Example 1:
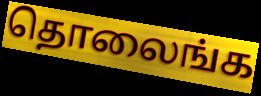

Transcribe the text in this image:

தொலைங்க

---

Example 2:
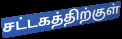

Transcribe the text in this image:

சட்டகத்திற்குள்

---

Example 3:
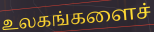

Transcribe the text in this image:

உலகங்களைச்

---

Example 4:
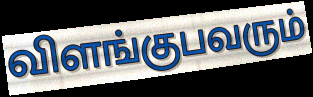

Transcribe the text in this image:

விளங்குபவரும்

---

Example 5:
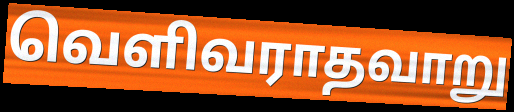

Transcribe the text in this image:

வெளிவராதவாறு